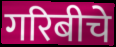
गरिबीचे